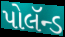
પોલૅન્ડ